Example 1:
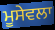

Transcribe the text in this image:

ਮੂਸੇਵਲਾ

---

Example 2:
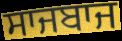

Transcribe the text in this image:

ਸਾਜਬਾਜ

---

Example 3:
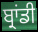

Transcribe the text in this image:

ਬ੍ਰਾਂਡੀ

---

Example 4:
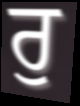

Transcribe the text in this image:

ਰੁ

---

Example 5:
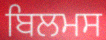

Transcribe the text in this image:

ਬਿਲਮਸ